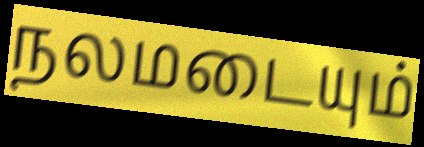
நலமடையும்